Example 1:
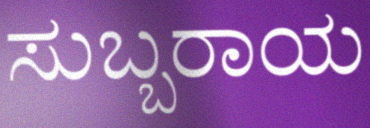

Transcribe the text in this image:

ಸುಬ್ಬರಾಯ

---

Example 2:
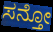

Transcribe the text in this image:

ಸನ್ತೋ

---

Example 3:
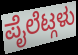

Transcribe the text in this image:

ಪೈಲೆಟ್ಗಳು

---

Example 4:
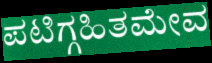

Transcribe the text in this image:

ಪಟಿಗ್ಗಹಿತಮೇವ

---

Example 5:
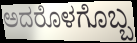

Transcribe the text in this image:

ಅದರೊಳಗೊಬ್ಬ